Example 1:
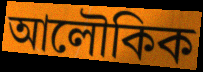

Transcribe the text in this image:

আলৌকিক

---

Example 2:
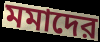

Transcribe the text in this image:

মমাদের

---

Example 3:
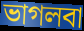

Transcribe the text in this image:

ভাগলবা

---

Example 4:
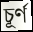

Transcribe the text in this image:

চূর্ণ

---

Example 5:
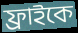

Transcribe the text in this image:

ফ্রাইকে